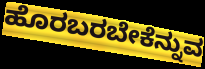
ಹೊರಬರಬೇಕೆನ್ನುವ